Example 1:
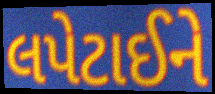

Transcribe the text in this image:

લપેટાઈને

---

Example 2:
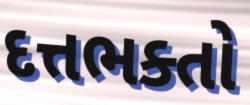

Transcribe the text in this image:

દત્તભક્તો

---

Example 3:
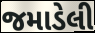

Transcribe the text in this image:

જમાડેલી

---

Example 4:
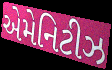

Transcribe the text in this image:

એમેનિટીઝ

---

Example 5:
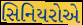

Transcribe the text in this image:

સિનિયરોએ